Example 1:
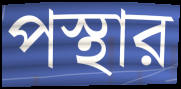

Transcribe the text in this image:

পস্থার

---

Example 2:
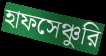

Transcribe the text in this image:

হাফসেঞ্চুরি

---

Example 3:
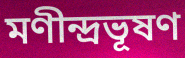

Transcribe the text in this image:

মণীন্দ্রভূষণ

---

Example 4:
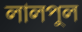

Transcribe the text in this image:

লালপুল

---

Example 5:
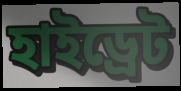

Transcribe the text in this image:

হাইড্রেট